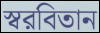
স্বরবিতান